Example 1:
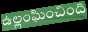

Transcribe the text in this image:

ఉల్లంఘించింది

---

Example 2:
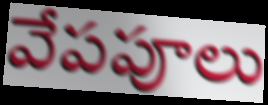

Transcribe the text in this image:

వేపపూలు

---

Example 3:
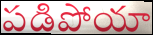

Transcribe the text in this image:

పడిపోయా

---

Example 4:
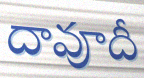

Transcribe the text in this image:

దావూదీ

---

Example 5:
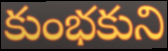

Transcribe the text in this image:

కుంభకుని